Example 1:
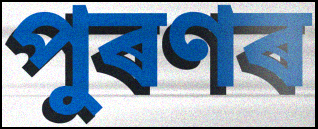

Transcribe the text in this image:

পুৰণৰ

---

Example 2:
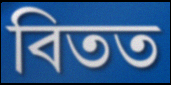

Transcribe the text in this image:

বিতত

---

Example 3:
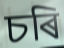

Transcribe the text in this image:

চৰি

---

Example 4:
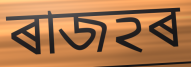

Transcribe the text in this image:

ৰাজহৰ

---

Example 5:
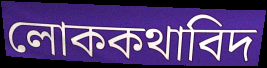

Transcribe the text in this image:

লোককথাবিদ